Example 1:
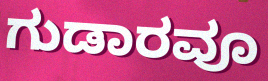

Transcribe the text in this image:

ಗುಡಾರವೂ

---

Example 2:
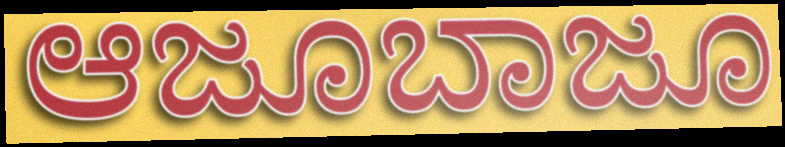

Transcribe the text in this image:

ಆಜೂಬಾಜೂ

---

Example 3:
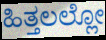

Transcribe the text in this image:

ಹಿತ್ತಲಲ್ಲೋ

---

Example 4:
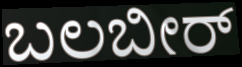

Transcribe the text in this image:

ಬಲಬೀರ್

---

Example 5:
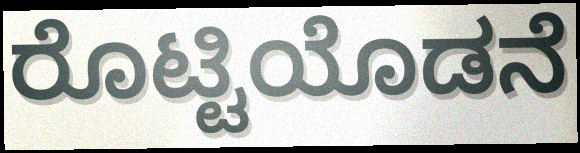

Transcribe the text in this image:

ರೊಟ್ಟಿಯೊಡನೆ